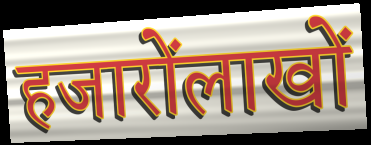
हजारोंलाखों